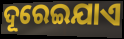
ଦୂରେଇଯାଏ